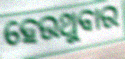
ହେଉଥୁବାର